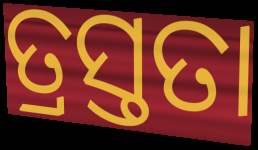
ତ୍ରସ୍ତତା